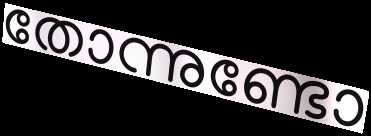
തോന്നുണ്ടോ